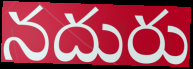
నదురు